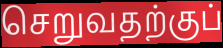
செறுவதற்குப்